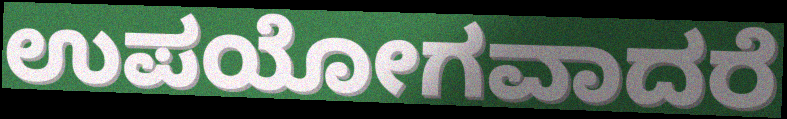
ಉಪಯೋಗವಾದರೆ